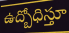
ఉద్బోధిస్తూ